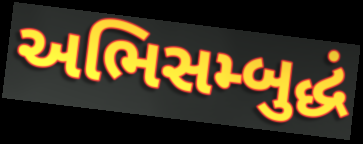
અભિસમ્બુદ્ધં